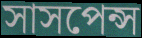
সাসপেন্স